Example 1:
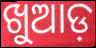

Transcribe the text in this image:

ଖୁଆଡ଼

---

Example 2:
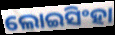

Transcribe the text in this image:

ଲୋଇସିଂହା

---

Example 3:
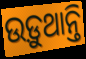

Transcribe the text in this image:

ଉଡ଼ୁଥାନ୍ତି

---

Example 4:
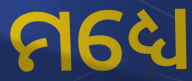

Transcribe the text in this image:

ମଧ୍ୟେ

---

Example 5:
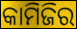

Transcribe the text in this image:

କାମିଜିର